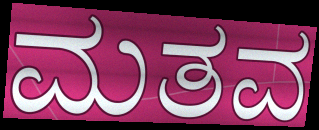
ಮತವ